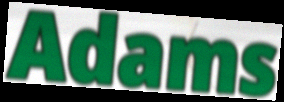
Adams